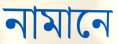
নামানে